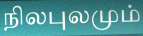
நிலபுலமும்